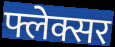
फ्लेक्सर